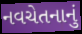
નવચેતનાનું